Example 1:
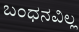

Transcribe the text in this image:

ಬಂಧನವಿಲ್ಲ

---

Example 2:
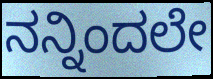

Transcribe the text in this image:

ನನ್ನಿಂದಲೇ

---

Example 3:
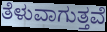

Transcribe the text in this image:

ತೆಳುವಾಗುತ್ತವೆ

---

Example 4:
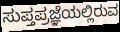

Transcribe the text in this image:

ಸುಪ್ತಪ್ರಜ್ಞೆಯಲ್ಲಿರುವ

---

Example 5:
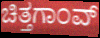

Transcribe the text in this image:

ಚಿತ್ತಗಾಂವ್